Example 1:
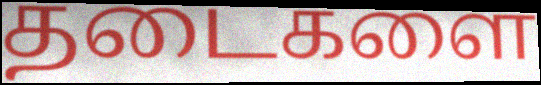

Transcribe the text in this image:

தடைகளை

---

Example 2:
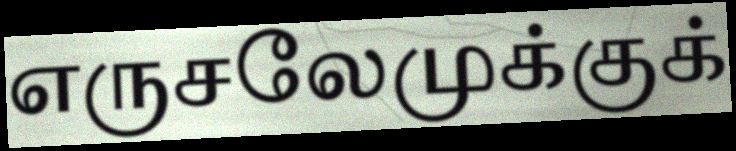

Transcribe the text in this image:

எருசலேமுக்குக்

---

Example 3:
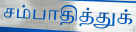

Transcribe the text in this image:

சம்பாதித்துக்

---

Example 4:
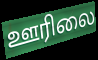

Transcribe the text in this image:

ஊரிலை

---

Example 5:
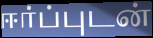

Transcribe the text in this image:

ஈர்ப்புடன்